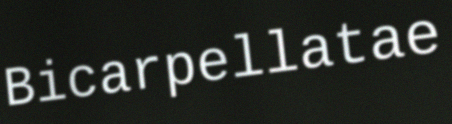
Bicarpellatae